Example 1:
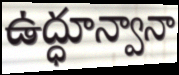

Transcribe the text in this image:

ఉద్ధూన్వానా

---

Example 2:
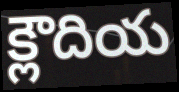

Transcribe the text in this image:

క్లౌదియ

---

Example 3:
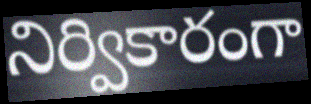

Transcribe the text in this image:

నిర్వికారంగా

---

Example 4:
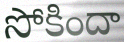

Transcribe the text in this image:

సోకిందా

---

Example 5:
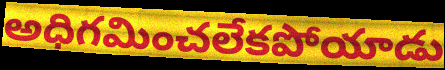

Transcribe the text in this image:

అధిగమించలేకపోయాడు